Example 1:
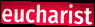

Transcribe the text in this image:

eucharist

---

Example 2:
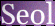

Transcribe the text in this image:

Seol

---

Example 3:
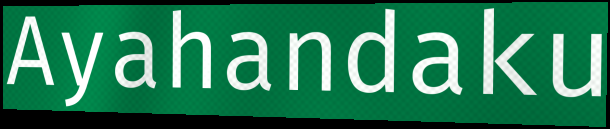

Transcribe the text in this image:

Ayahandaku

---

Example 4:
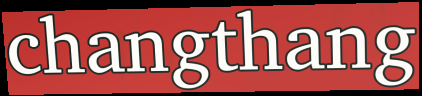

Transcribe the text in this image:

changthang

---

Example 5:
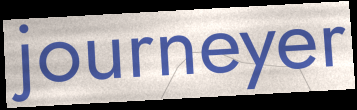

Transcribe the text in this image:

journeyer